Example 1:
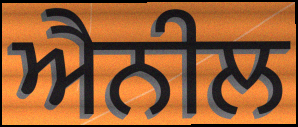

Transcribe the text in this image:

ਐਨੀਲ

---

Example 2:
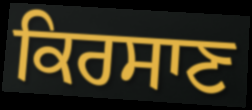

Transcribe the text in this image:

ਕਿਰਸਾਣ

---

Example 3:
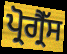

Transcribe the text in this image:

ਪ੍ਰੋਗ੍ਰੈੱਸ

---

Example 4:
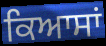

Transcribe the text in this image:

ਕਿਆਸਾਂ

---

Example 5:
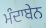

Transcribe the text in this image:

ਮੰਦਾਬੇਨ